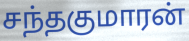
சந்தகுமாரன்